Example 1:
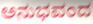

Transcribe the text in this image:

ಅನುಭವಂದ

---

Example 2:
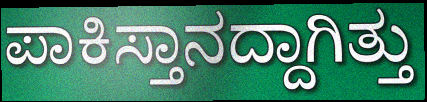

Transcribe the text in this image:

ಪಾಕಿಸ್ತಾನದ್ದಾಗಿತ್ತು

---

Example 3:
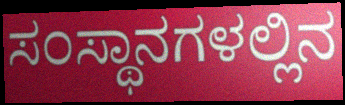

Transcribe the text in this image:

ಸಂಸ್ಥಾನಗಳಲ್ಲಿನ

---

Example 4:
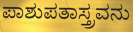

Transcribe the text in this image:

ಪಾಶುಪತಾಸ್ತ್ರವನು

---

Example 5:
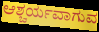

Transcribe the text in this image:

ಆಶ್ಚರ್ಯವಾಗುವ